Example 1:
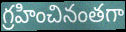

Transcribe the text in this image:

గ్రహించినంతగా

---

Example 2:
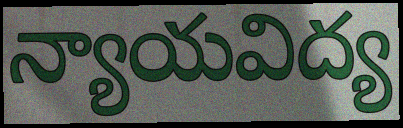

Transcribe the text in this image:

న్యాయవిద్య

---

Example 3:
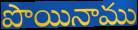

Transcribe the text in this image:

పొయినాము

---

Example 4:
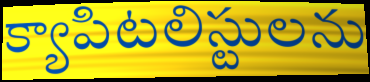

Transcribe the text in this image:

క్యాపిటలిస్టులను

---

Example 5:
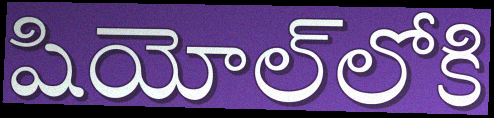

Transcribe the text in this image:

షియోల్‌లోకి